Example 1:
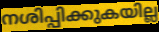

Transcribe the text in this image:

നശിപ്പിക്കുകയില്ല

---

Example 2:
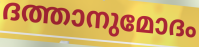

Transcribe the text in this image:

ദത്താനുമോദം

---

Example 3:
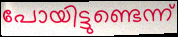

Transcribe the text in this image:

പോയിട്ടുണ്ടെന്ന്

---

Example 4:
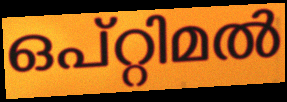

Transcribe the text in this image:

ഒപ്റ്റിമൽ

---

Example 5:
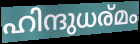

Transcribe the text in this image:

ഹിന്ദുധര്മം